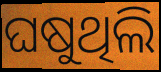
ଘଷୁଥିଲି